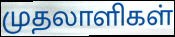
முதலாளிகள்